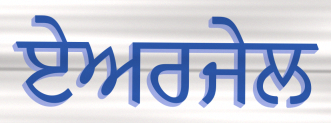
ਏਅਰਜੇਲ